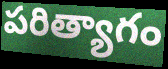
పరిత్యాగం